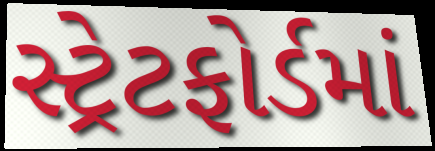
સ્ટ્રેટફોર્ડમાં